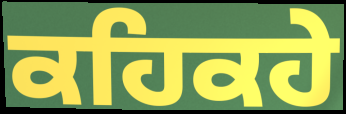
ਕਹਿਕਹੇ